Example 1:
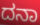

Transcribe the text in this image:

ದನಾ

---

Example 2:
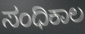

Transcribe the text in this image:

ಸಂಧಿಕಾಲ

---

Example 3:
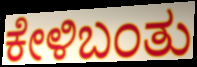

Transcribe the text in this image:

ಕೇಳಿಬಂತು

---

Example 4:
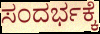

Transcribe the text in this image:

ಸಂದರ್ಭಕ್ಕೆ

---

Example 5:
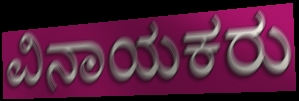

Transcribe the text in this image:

ವಿನಾಯಕರು